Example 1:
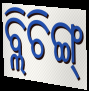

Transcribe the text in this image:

ବ୍ଲିଚିଙ୍ଗ୍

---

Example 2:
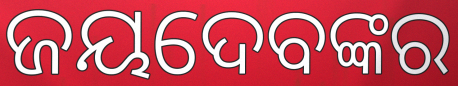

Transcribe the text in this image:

ଜୟଦେବଙ୍କର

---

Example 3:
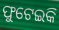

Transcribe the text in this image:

ଫୁଟେଇକି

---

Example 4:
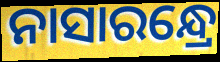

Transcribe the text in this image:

ନାସାରନ୍ଧ୍ରେ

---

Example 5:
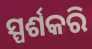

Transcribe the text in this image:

ସ୍ପର୍ଶକରି